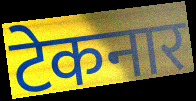
टेकनार